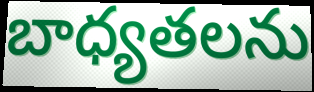
బాధ్యతలను